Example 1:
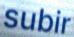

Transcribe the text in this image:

subir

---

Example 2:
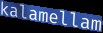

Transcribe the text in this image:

kalamellam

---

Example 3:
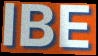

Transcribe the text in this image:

IBE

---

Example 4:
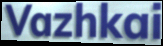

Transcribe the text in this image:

Vazhkai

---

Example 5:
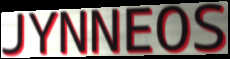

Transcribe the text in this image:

JYNNEOS